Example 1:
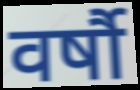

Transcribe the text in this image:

वर्षौ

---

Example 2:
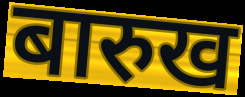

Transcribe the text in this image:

बारुख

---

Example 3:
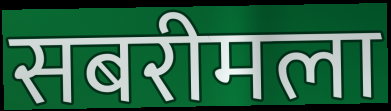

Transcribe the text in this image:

सबरीमला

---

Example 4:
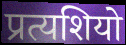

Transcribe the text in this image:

प्रत्यशियो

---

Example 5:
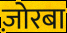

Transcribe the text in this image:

ज़ोरबा